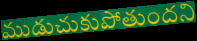
ముడుచుకుపోతుందని